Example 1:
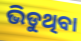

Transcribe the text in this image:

ଭିଡୁଥିବା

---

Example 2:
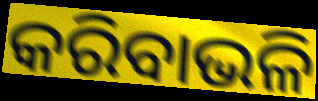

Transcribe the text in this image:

କରିବାଭଳି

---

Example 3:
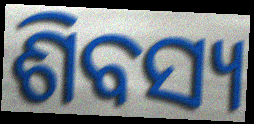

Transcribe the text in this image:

ଶିବସ୍ଯ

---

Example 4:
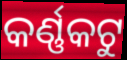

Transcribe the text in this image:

କର୍ଣ୍ଣକଟୁ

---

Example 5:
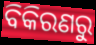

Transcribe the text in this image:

ବିକିରଣରୁ